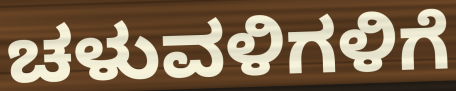
ಚಳುವಳಿಗಳಿಗೆ